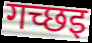
गच्छइ